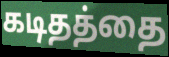
கடிதத்தை